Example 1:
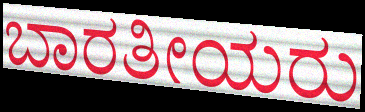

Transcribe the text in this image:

ಬಾರತೀಯರು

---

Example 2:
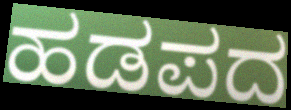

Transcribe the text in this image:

ಹಡಪದ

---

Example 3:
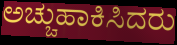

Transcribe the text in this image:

ಅಚ್ಚುಹಾಕಿಸಿದರು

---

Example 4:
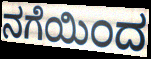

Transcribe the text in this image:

ನಗೆಯಿಂದ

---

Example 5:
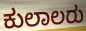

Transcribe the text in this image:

ಕುಲಾಲರು